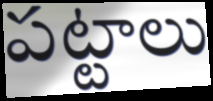
పట్టాలు